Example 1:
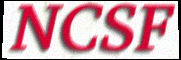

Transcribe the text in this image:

NCSF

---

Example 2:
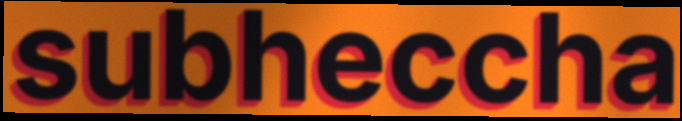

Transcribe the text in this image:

subheccha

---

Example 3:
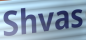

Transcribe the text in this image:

Shvas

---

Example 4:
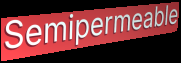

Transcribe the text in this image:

Semipermeable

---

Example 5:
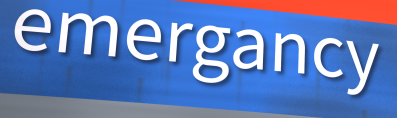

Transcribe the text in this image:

emergancy